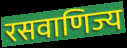
रसवाणिज्य